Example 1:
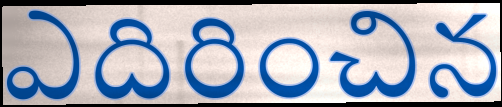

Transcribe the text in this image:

ఎదిరించిన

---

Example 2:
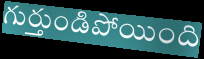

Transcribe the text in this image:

గుర్తుండిపోయింది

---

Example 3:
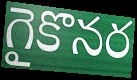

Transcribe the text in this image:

గైకొనర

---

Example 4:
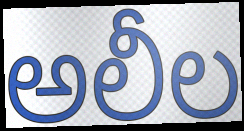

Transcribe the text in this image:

అలీల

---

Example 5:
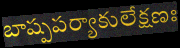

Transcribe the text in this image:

బాష్పపర్యాకులేక్షణః